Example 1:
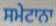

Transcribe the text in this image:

ਸਮੇਟਾਨਾ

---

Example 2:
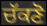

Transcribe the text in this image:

ਚੱਕਣੋ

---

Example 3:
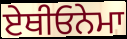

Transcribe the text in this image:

ਏਥੀਓਨੇਮਾ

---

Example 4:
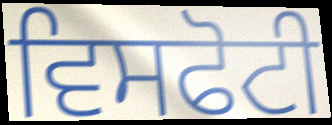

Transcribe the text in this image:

ਵਿਸਫੋਟੀ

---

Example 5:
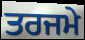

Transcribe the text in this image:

ਤਰਜਮੇ